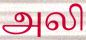
அலி